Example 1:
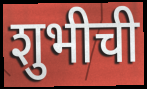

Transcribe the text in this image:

शुभीची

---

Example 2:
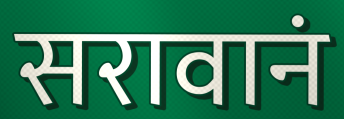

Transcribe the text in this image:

सरावानं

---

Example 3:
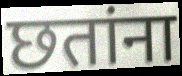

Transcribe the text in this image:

छतांना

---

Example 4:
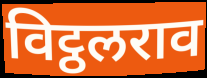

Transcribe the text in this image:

विट्ठलराव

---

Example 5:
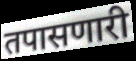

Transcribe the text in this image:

तपासणारी